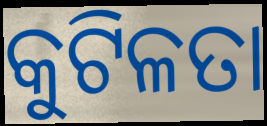
କୁଟିଳତା